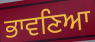
ਭਾਵਣਿਆ